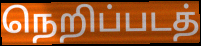
நெறிப்படத்